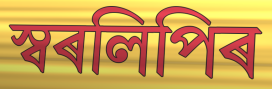
স্বৰলিপিৰ